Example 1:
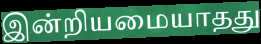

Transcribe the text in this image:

இன்றியமையாதது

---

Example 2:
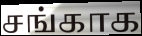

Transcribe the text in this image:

சங்காக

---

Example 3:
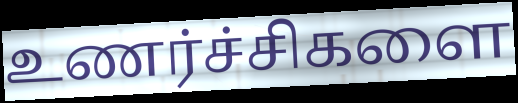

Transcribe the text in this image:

உணர்ச்சிகளை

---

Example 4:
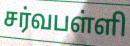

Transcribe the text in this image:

சர்வபள்ளி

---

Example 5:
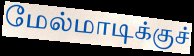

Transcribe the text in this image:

மேல்மாடிக்குச்